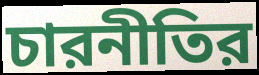
চারনীতির